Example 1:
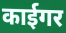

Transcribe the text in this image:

काईगर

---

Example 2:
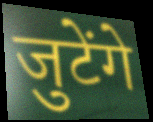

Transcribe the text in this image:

जुटेंगे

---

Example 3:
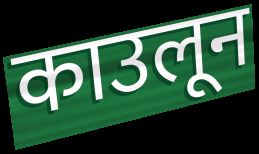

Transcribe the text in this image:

काउलून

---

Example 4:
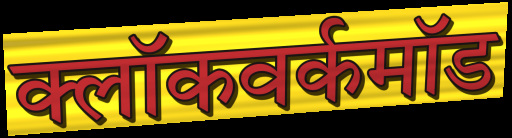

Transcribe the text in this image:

क्लॉकवर्कमॉड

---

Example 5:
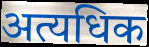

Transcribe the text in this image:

अत्‍यधिक